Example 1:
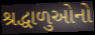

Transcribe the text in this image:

શ્રદ્ધાળુઓનો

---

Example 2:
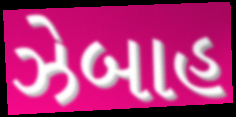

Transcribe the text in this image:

ઝેબાહ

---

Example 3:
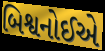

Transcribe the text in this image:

બિશ્વનોઈએ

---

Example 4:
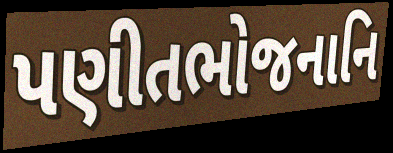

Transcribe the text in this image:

પણીતભોજનાનિ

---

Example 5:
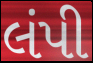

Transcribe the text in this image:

લંપી